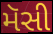
મૅસી